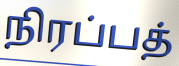
நிரப்பத்